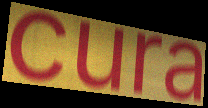
cura